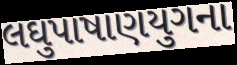
લઘુપાષાણયુગના